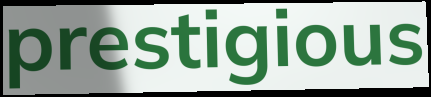
prestigious